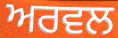
ਅਰਵਲ